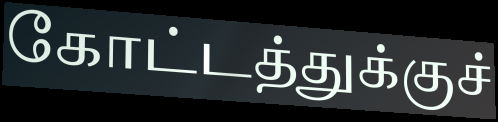
கோட்டத்துக்குச்